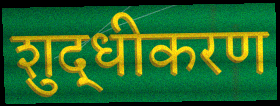
शुद्धीकरण